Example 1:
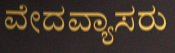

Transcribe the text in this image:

ವೇದವ್ಯಾಸರು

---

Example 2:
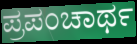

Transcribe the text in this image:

ಪ್ರಪಂಚಾರ್ಥ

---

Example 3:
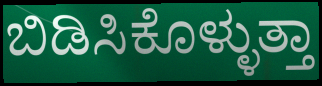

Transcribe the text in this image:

ಬಿಡಿಸಿಕೊಳ್ಳುತ್ತಾ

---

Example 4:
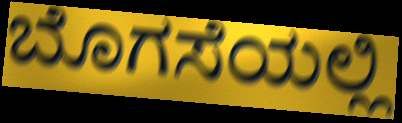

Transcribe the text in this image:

ಬೊಗಸೆಯಲ್ಲಿ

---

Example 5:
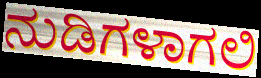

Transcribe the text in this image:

ನುಡಿಗಳಾಗಲಿ